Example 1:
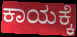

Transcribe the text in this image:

ಕಾಯಕ್ಕೆ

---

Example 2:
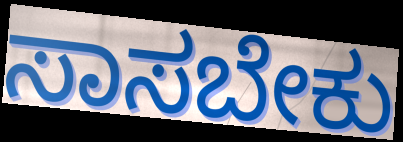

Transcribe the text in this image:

ಸಾಸಬೇಕು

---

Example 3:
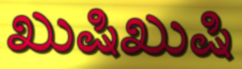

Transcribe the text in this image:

ಖುಷಿಖುಷಿ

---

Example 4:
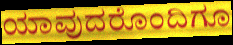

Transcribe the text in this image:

ಯಾವುದರೊಂದಿಗೂ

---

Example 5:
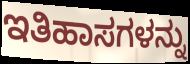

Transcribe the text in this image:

ಇತಿಹಾಸಗಳನ್ನು